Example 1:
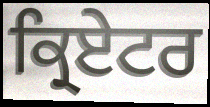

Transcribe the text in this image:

ਕ੍ਰਿਏਟਰ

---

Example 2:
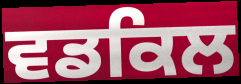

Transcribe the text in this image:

ਵਡਕਿਲ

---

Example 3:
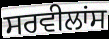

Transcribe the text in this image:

ਸਰਵੀਲਾਂਸ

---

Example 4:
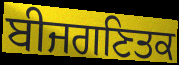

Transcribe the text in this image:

ਬੀਜਗਣਿਤਕ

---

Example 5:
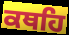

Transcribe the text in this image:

ਕਥਹਿ